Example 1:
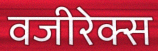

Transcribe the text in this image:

वजीरेक्स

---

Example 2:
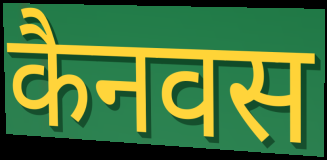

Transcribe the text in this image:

कैनवस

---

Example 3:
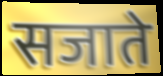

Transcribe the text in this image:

सजाते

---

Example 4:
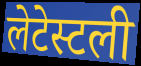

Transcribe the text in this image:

लेटेस्टली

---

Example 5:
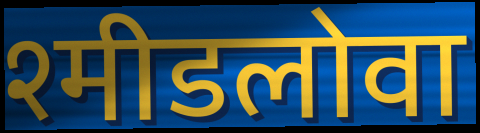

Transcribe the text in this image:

श्मीडलोवा